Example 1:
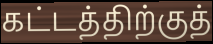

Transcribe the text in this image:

கட்டத்திற்குத்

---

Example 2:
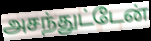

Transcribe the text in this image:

அசந்துட்டேன்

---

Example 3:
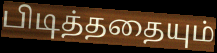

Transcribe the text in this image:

பிடித்ததையும்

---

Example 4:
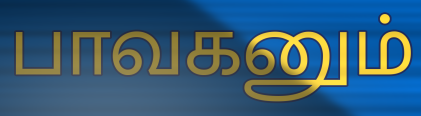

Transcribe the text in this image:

பாவகனும்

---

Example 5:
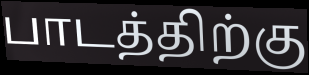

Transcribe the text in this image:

பாடத்திற்கு